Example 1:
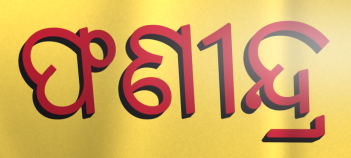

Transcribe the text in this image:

ଫଣୀନ୍ଦ୍ର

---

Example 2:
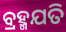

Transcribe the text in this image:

ବ୍ରହ୍ମଯତି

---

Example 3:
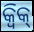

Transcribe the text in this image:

କ୍ୱିକ୍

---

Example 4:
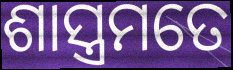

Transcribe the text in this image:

ଶାସ୍ତ୍ରମତେ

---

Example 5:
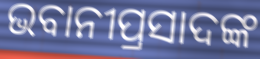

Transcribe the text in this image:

ଭବାନୀପ୍ରସାଦଙ୍କ